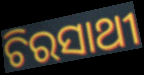
ଚିରସାଥୀ